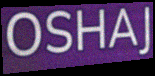
OSHAJ